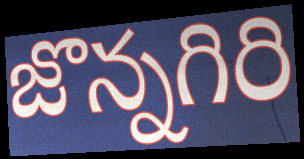
జొన్నగిరి